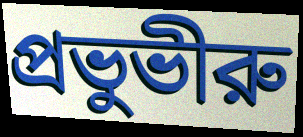
প্রভুভীরু